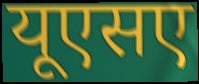
यूएसए